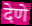
देणे